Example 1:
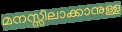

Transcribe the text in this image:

മനസ്സിലാക്കാനുള്ള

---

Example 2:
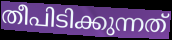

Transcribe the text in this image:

തീപിടിക്കുന്നത്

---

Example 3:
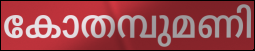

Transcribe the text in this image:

കോതമ്പുമണി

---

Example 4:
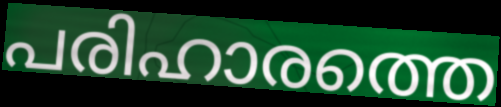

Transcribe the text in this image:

പരിഹാരത്തെ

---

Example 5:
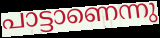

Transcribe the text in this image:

പാട്ടാണെന്നു